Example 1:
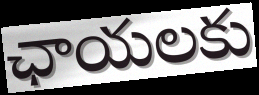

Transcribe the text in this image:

ఛాయలకు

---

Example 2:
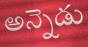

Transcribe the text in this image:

అన్నెడు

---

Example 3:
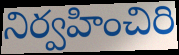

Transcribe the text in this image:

నిర్వహించిరి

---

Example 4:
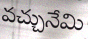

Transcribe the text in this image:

వచ్చునేమి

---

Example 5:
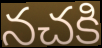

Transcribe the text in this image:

నచకి